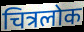
चित्रलोक